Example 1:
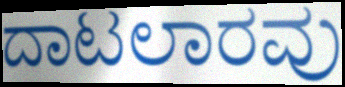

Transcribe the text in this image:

ದಾಟಲಾರವು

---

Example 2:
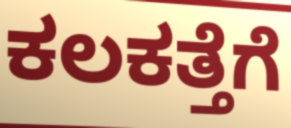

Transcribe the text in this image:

ಕಲಕತ್ತೆಗೆ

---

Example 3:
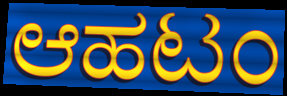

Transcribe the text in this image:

ಆಹಟಂ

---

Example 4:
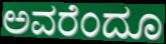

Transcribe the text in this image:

ಅವರೆಂದೂ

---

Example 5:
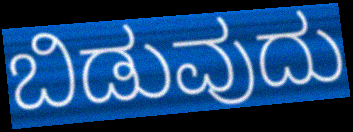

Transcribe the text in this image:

ಬಿಡುವುದು